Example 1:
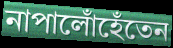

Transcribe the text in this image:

নাপালোঁহেঁতেন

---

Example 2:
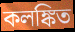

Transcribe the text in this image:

কলঙ্কিত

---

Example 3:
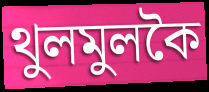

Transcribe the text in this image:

থুলমুলকৈ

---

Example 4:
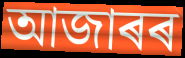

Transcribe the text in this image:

আজাৰৰ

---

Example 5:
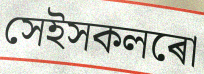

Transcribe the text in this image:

সেইসকলৰো